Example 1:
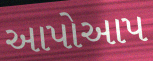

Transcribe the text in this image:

આપોઆપ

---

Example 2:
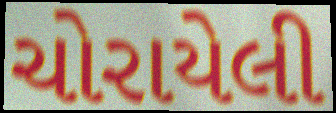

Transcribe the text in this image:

ચોરાયેલી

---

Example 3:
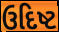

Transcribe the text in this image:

ઉદિષ્ટ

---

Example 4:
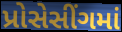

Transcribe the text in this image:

પ્રોસેસીંગમાં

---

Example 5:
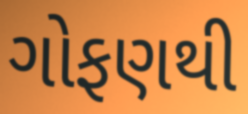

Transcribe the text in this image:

ગોફણથી